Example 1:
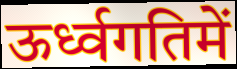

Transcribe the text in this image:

ऊर्ध्वगतिमें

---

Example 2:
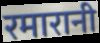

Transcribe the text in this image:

रमारानी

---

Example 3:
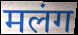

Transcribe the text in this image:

मलंग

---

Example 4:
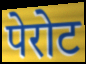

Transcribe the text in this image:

पेरोट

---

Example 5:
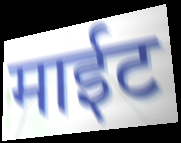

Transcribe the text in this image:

माईट